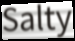
Salty